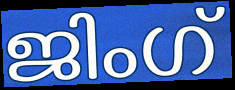
ജിംഗ്